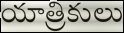
యాత్రికులు